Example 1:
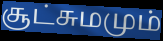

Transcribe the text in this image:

சூட்சுமமும்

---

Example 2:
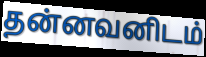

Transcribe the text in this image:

தன்னவனிடம்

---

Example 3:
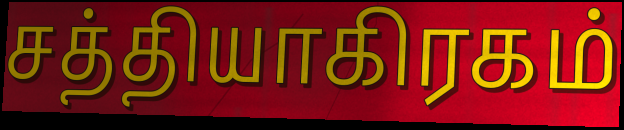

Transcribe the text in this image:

சத்தியாகிரகம்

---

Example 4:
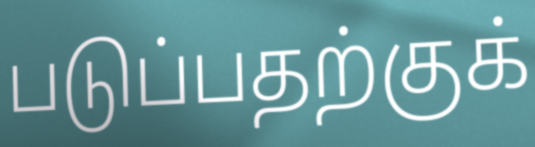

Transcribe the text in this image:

படுப்பதற்குக்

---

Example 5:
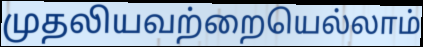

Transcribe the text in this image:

முதலியவற்றையெல்லாம்